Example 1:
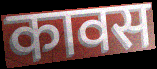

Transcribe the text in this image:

कावस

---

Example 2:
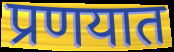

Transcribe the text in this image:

प्रणयात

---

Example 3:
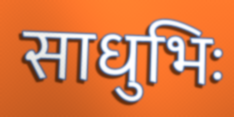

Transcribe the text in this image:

साधुभिः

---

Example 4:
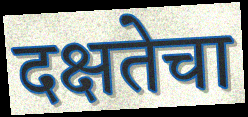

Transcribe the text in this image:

दक्षतेचा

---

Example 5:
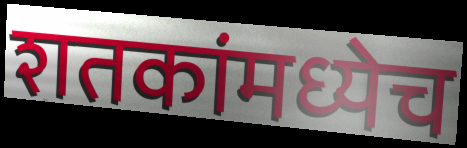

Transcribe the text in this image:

शतकांमध्येच